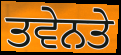
ਤਵੇਨਤੇ